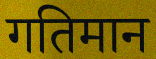
गतिमान